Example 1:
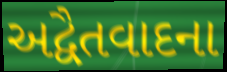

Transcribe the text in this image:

અદ્વૈતવાદના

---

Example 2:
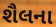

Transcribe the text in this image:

શૈલના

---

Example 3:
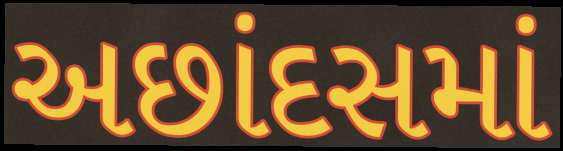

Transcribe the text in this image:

અછાંદસમાં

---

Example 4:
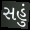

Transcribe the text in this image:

સહું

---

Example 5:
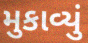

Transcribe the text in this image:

મુકાવ્યું